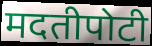
मदतीपोटी